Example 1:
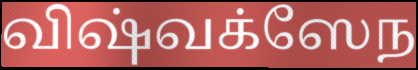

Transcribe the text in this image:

விஷ்வக்ஸேந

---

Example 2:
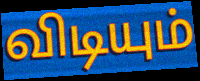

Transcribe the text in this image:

விடியும்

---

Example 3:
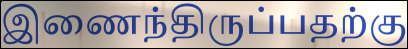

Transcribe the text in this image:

இணைந்திருப்பதற்கு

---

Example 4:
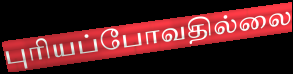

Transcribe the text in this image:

புரியப்போவதில்லை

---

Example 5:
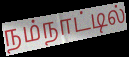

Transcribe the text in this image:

நம்நாட்டில்